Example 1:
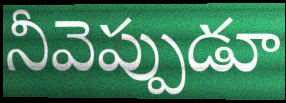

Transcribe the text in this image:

నీవెప్పుడూ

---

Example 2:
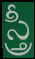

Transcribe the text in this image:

స్త్రీ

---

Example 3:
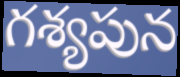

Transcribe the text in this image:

గశ్యపున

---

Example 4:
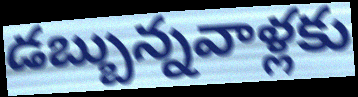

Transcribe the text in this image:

డబ్బున్నవాళ్లకు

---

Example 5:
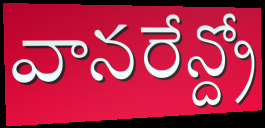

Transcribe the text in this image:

వానరేన్ద్రో